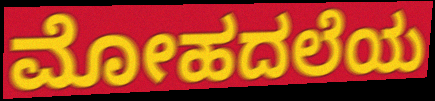
ಮೋಹದಲೆಯ